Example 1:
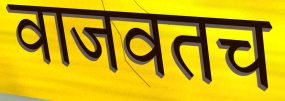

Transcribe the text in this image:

वाजवतच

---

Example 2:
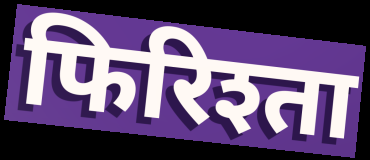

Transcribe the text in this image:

फिरिश्ता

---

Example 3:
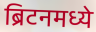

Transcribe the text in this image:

ब्रिटनमध्ये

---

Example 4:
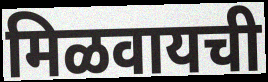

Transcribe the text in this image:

मिळवायची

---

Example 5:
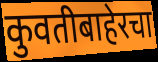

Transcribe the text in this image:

कुवतीबाहेरचा